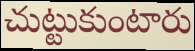
చుట్టుకుంటారు